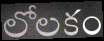
లోలకం